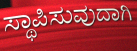
ಸ್ಥಾಪಿಸುವುದಾಗಿ